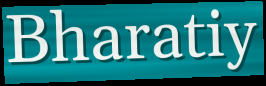
Bharatiy